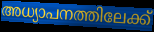
അധ്യാപനത്തിലേക്ക്